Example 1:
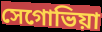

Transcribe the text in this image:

সেগোভিয়া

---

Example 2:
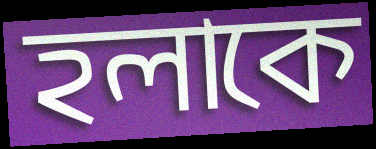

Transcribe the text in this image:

হলাকে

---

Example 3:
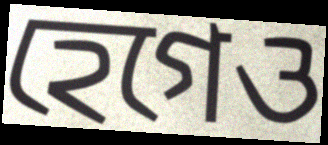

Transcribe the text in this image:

হেগেও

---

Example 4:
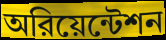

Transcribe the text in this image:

অরিয়েন্টেশন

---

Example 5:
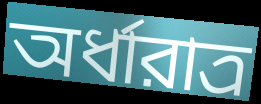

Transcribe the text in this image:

অর্ধারাত্র